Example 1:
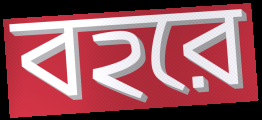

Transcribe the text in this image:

বহরে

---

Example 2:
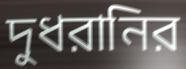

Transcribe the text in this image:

দুধরানির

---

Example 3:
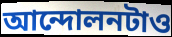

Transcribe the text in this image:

আন্দোলনটাও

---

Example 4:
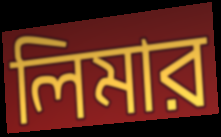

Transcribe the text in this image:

লিমার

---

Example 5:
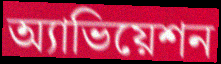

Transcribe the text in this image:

অ্যাভিয়েশন